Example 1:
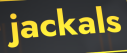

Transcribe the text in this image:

jackals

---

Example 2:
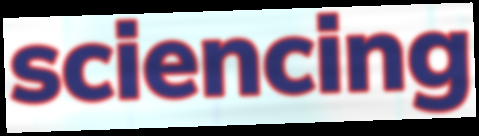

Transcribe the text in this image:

sciencing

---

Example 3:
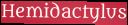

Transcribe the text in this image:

Hemidactylus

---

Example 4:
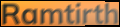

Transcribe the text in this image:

Ramtirth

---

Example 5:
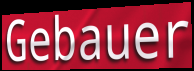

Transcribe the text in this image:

Gebauer